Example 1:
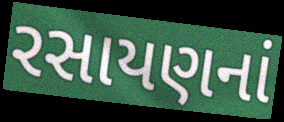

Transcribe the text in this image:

રસાયણનાં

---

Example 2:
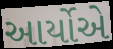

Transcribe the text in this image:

આર્યોએ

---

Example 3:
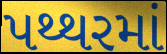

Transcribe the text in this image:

પથ્થરમાં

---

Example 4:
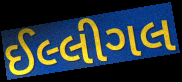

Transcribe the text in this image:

ઈલ્લીગલ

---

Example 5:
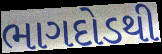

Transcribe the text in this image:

ભાગદોડથી